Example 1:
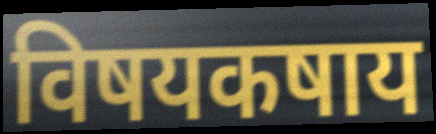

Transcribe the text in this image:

विषयकषाय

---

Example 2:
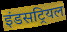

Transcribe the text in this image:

इंडसट्रियल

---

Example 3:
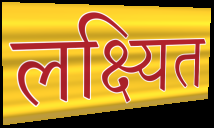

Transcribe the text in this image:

लक्ष्यित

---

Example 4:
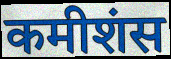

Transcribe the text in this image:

कमीशंस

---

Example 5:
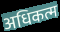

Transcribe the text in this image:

अधिकत्म